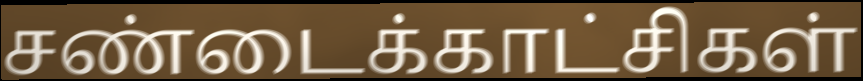
சண்டைக்காட்சிகள்